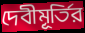
দেবীমূর্তির